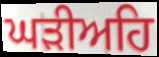
ਘੜੀਅਹਿ